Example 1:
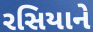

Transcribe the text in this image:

રસિયાને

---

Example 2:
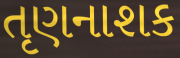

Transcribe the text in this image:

તૃણનાશક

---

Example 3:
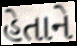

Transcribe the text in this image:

હેતાને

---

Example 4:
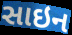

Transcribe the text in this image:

સાઇન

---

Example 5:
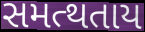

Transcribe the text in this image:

સમત્થતાય